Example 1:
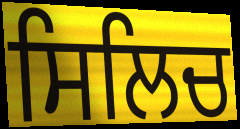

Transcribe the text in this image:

ਸਿਲਿਚ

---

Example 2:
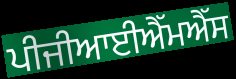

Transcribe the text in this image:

ਪੀਜੀਆਈਐੱਮਐੱਸ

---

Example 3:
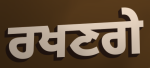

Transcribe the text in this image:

ਰਖਣਗੇ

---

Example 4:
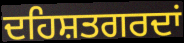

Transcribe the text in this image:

ਦਹਿਸ਼ਤਗਰਦਾਂ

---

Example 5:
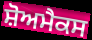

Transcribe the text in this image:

ਸ਼ੋਅਮੈਕਸ